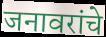
जनावरांचे